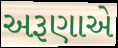
અરૂણાએ